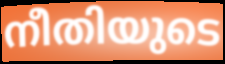
നീതിയുടെ